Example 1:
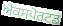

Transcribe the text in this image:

ਐਕਸਪੋਰਟਡ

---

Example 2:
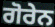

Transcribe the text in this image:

ਗੋਰੇਨ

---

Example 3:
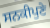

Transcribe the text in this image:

ਸਨਕੀਪੁਣੇ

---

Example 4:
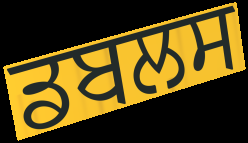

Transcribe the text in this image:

ਡਬਲਸ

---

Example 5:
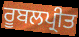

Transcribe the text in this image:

ਰੂਬਲਪ੍ਰੀਤ